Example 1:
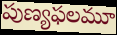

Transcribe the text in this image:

పుణ్యఫలమూ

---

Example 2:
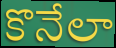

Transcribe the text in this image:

కొనేలా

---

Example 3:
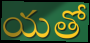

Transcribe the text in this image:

యతో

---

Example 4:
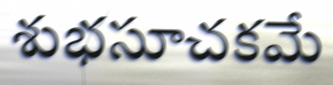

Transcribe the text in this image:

శుభసూచకమే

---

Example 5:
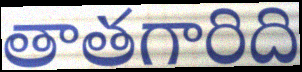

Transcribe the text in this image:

తాతగారిది